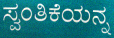
ಸ್ವಂತಿಕೆಯನ್ನ